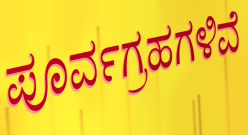
ಪೂರ್ವಗ್ರಹಗಳಿವೆ